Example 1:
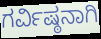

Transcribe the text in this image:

ಗರ್ವಿಷ್ಠನಾಗಿ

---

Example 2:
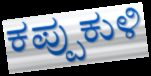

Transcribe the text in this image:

ಕಪ್ಪುಕುಳಿ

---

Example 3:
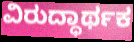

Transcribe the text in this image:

ವಿರುದ್ಧಾರ್ಥಕ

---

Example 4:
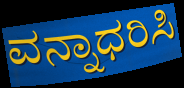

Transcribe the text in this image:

ವನ್ನಾಧರಿಸಿ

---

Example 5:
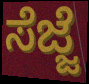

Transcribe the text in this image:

ಸೆಜ್ಜೆ